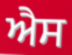
ਐਸ